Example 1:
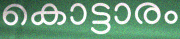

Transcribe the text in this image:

കൊട്ടാരം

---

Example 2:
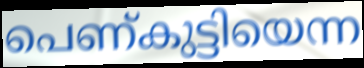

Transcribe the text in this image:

പെണ്കുട്ടിയെന്ന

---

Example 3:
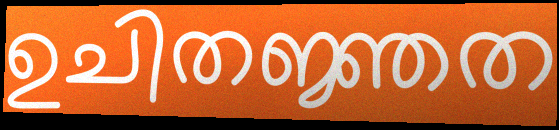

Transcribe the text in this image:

ഉചിതജ്ഞത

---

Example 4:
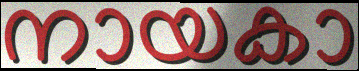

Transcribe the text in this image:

നായകാ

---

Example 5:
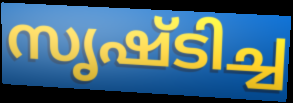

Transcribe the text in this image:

സൃഷ്ടിച്ച